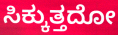
ಸಿಕ್ಕುತ್ತದೋ